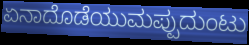
ಏನಾದೊಡೆಯುಮಪ್ಪುದುಂಟು